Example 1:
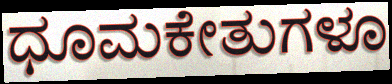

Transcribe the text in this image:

ಧೂಮಕೇತುಗಳೂ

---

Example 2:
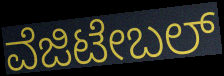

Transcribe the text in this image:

ವೆಜಿಟೇಬಲ್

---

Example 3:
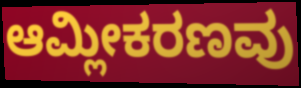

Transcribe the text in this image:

ಆಮ್ಲೀಕರಣವು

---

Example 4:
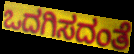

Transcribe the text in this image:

ಒದಗಿಸದಂತೆ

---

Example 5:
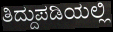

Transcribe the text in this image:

ತಿದ್ದುಪಡಿಯಲ್ಲಿ